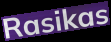
Rasikas